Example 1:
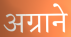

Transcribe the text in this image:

अग्राने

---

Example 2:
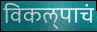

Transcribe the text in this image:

विकल्पाचं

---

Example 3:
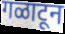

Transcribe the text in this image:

गळाटून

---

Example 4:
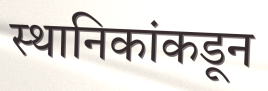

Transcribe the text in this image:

स्थानिकांकडून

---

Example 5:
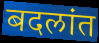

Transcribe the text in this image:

बदलांत